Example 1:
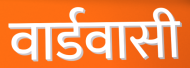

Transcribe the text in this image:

वार्डवासी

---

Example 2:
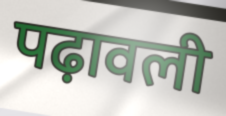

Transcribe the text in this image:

पढ़ावली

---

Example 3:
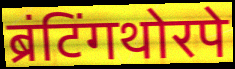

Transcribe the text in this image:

ब्रंटिंगथोरपे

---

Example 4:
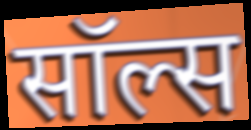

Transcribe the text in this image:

सॉल्स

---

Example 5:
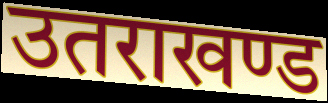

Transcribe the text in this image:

उतराखण्ड